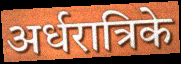
अर्धरात्रिके